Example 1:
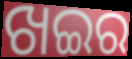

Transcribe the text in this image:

ଖଇର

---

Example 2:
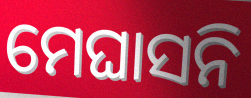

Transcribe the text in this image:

ମେଘାସନି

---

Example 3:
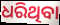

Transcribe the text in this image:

ଧରିଥିବା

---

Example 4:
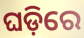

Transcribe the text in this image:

ଘଡ଼ିରେ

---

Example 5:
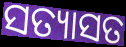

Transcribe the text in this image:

ସତ୍ୟାସତ